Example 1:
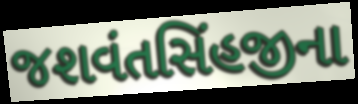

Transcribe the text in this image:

જશવંતસિંહજીના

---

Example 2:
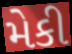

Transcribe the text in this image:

મેકી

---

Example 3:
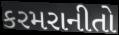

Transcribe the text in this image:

કરમરાનીતો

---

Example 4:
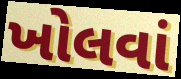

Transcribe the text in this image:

ખોલવાં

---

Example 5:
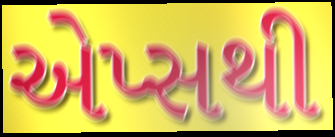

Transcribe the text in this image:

એપ્સથી